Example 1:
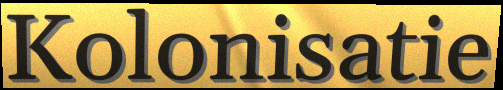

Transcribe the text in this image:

Kolonisatie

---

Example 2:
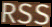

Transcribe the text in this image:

RSS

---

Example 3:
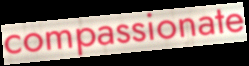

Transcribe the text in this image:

compassionate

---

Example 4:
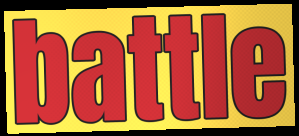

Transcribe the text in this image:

battle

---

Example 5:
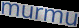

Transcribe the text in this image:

murmu